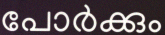
പോർക്കും